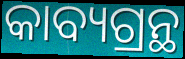
କାବ୍ୟଗ୍ରନ୍ଥ